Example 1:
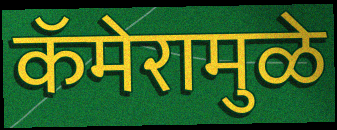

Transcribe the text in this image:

कॅमेरामुळे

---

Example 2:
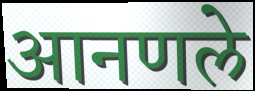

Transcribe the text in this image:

आनणले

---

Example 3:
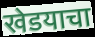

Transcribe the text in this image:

खेडयाचा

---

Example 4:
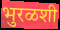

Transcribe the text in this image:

भुरळशी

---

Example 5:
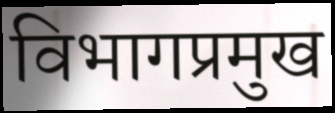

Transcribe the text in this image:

विभागप्रमुख